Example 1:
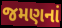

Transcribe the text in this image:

જમણનાં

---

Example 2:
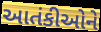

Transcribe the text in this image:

આતંકીઓને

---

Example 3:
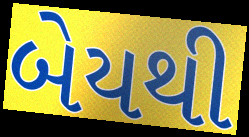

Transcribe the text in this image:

બેયથી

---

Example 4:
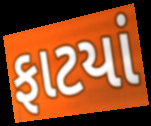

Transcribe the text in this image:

ફાટયાં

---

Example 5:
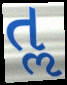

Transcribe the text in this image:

તૢ